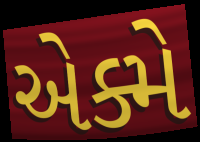
એક્મે